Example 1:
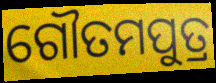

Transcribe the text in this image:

ଗୌତମପୁତ୍ର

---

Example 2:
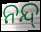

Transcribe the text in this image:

ନନ୍ଦ୍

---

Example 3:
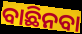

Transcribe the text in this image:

ବାଛିନବା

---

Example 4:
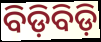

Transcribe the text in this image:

ବିଡ଼ିବିଡ଼ି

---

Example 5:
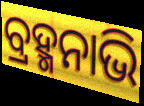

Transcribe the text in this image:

ବ୍ରହ୍ମନାଭି